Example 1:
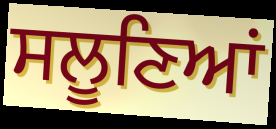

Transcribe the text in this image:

ਸਲੂਣਿਆਂ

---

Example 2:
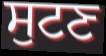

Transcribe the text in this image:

ਸੁਟਣ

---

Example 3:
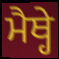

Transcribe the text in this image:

ਮੈਥ੍ਹੇ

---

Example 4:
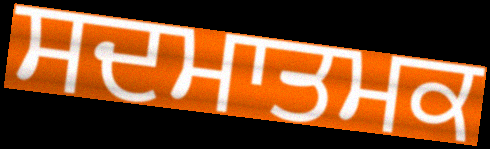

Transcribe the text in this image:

ਸਦਮਾਤਮਕ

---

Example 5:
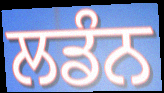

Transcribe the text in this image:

ਲਡੰਨ